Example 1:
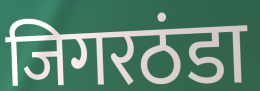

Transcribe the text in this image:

जिगरठंडा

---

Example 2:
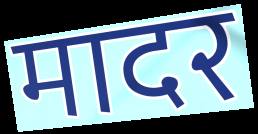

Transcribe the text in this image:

मादर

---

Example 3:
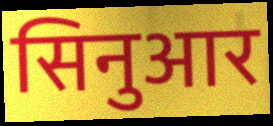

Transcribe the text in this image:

सिनुआर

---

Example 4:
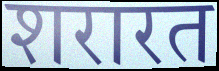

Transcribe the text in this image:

शरारत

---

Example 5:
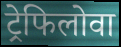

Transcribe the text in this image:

ट्रेफिलोवा